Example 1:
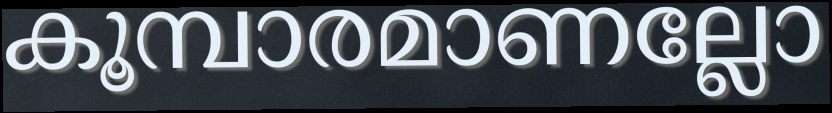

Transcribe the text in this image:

കൂമ്പാരമാണല്ലോ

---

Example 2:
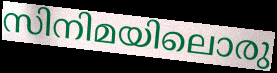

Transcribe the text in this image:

സിനിമയിലൊരു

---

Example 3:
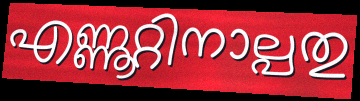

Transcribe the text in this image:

എണ്ണൂറ്റിനാല്പതു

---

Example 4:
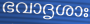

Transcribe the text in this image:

ഭവാദൃശാഃ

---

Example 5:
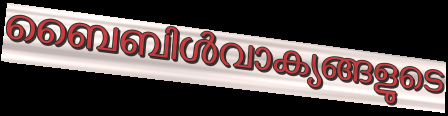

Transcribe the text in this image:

ബൈബിൾവാക്യങ്ങളുടെ